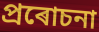
প্ৰৰোচনা